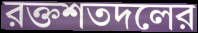
রক্তশতদলের